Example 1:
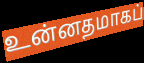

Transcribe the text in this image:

உன்னதமாகப்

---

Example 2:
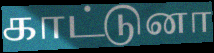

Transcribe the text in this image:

காட்டுனா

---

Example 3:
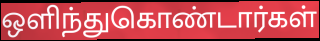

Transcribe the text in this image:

ஒளிந்துகொண்டார்கள்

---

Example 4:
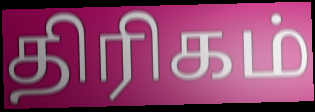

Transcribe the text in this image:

திரிகம்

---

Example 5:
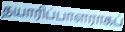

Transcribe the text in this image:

தயாரிப்பாளராகப்